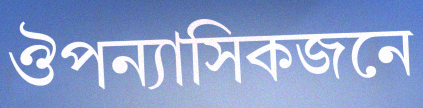
ঔপন্যাসিকজনে